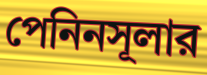
পেনিনসূলার